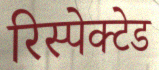
रिस्पेक्टेड